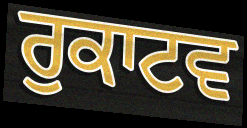
ਰੁਕਾਟਵ